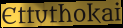
Ettuthokai